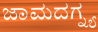
ಜಾಮದಗ್ನ್ಯ